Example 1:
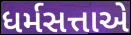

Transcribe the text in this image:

ધર્મસત્તાએ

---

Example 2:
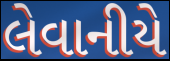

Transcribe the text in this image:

લેવાનીયે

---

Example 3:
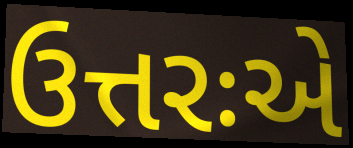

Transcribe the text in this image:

ઉત્તરઃએ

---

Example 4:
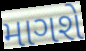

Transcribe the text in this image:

માગશે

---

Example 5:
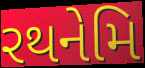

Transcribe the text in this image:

રથનેમિ